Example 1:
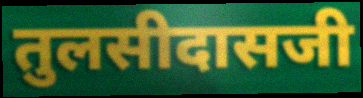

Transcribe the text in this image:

तुलसीदासजी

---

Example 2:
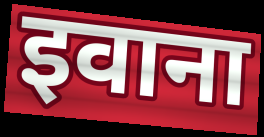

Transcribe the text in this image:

इवाना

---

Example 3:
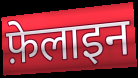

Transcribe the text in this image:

फ़ेलाइन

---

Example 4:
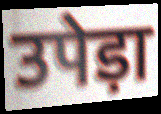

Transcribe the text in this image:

उपेड़ा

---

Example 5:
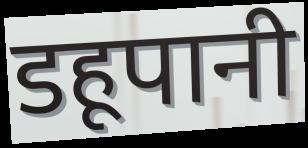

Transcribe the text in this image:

डहूपानी